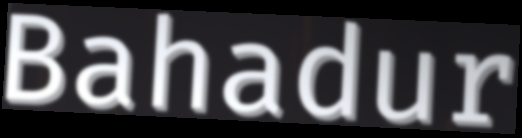
Bahadur